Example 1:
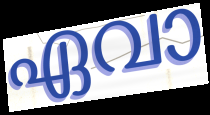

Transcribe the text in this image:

ഏവാ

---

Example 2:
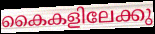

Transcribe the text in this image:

കൈകളിലേക്കു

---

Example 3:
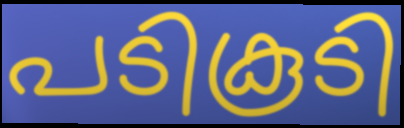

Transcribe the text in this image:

പടികൂടി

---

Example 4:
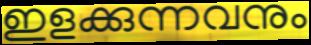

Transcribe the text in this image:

ഇളക്കുന്നവനും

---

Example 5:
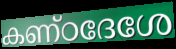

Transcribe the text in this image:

കണ്ഠദേശേ